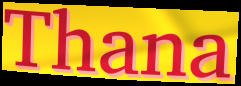
Thana